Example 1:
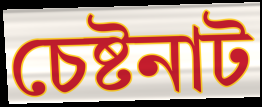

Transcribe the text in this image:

চেষ্টনাট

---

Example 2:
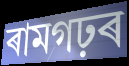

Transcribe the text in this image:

ৰামগঢ়ৰ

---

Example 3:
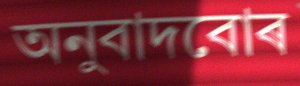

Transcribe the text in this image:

অনুবাদবোৰ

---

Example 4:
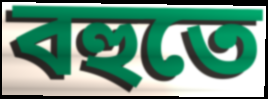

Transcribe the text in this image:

বহুতে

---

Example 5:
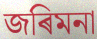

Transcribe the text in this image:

জৰিমনা